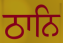
ਠਾਨਿ